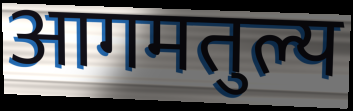
आगमतुल्य